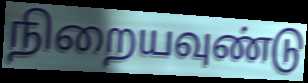
நிறையவுண்டு